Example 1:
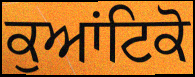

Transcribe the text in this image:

ਕੁਆਂਟਿਕੋ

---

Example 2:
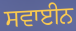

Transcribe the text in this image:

ਸਵਾਈਨ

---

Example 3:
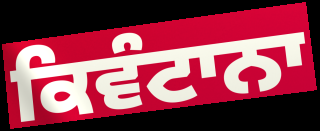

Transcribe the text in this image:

ਕਿਵੰਟਾਨਾ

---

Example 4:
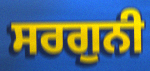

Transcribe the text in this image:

ਸਰਗੁਨੀ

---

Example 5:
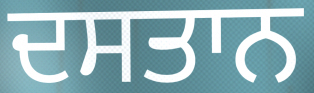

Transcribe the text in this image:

ਦਸਤਾਨ